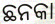
ଛନକା